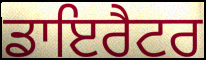
ਡਾਇਰੈਟਰ